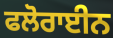
ਫਲੋਰਾਈਨ